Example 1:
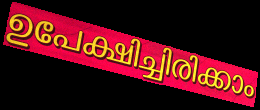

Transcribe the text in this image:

ഉപേക്ഷിച്ചിരിക്കാം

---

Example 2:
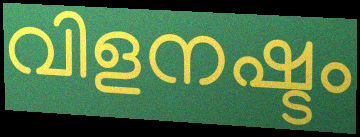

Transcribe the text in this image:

വിളനഷ്ടം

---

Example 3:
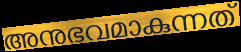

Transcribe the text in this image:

അനുഭവമാകുന്നത്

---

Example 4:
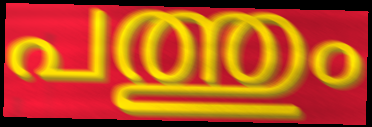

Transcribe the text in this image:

പത്തും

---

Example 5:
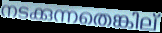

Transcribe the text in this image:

നടക്കുന്നതെങ്കില്